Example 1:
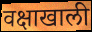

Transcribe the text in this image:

वक्षाखाली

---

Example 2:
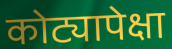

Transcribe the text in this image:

कोट्यापेक्षा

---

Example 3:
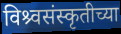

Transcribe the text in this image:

विश्र्वसंस्कृतीच्या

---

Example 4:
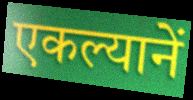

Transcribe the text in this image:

एकल्यानें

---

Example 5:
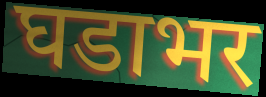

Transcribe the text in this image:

घडाभर